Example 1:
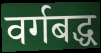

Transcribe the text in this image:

वर्गबद्ध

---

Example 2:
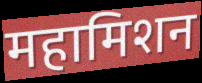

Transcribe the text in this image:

महामिशन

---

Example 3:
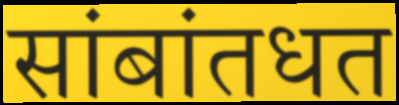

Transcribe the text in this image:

सांबांतधत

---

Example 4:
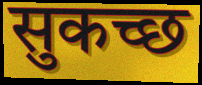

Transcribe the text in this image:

सुकच्छ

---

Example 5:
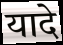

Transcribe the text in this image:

यादे